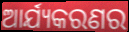
ଆର୍ଯ୍ୟକରଣର